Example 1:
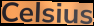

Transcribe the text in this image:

Celsius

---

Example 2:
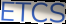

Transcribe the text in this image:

ETCS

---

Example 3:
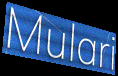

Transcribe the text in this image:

Mulari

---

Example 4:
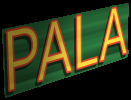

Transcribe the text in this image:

PALA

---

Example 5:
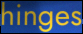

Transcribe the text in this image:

hinges